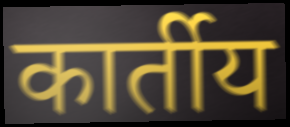
कार्तीय